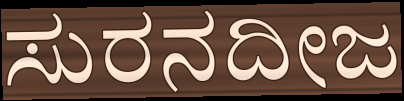
ಸುರನದೀಜ